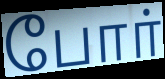
போர்